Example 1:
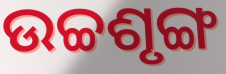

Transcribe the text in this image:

ଉଚ୍ଚଶୃଙ୍ଗ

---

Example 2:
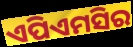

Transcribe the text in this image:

ଏପିଏମସିର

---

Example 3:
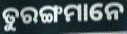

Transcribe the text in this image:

ତୁରଙ୍ଗମାନେ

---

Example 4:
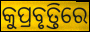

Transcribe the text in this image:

କୁପ୍ରବୃତ୍ତିରେ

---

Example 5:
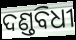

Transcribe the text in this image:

ଦଣ୍ଡବିଧୀ